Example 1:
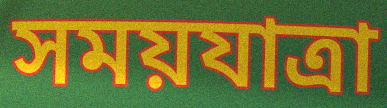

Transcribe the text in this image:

সময়যাত্রা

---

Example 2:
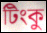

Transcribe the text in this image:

টিংকু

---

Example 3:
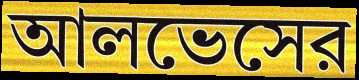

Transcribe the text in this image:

আলভেসের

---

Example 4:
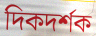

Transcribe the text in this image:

দিকদর্শক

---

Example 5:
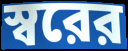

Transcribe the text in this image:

স্বরের